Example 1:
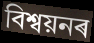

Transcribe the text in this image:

বিশ্বয়নৰ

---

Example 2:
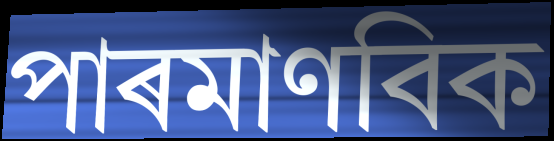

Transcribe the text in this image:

পাৰমাণবিক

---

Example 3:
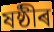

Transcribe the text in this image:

ষষ্ঠীৰ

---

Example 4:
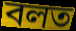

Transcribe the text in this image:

বলত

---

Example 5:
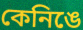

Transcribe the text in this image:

কেনিঙে